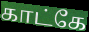
காட்கே